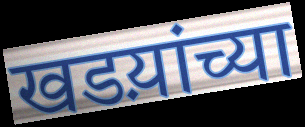
खडय़ांच्या